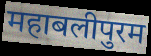
महाबलीपुरम